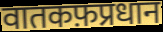
वातकफ़प्रधान